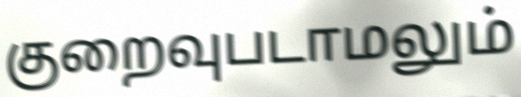
குறைவுபடாமலும்